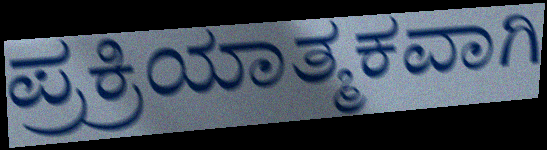
ಪ್ರಕ್ರಿಯಾತ್ಮಕವಾಗಿ